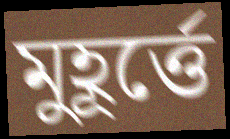
মুহূর্ত্তে